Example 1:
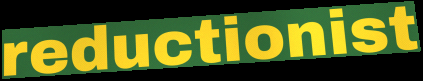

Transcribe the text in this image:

reductionist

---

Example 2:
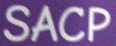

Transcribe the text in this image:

SACP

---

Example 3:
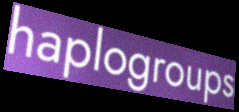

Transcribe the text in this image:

haplogroups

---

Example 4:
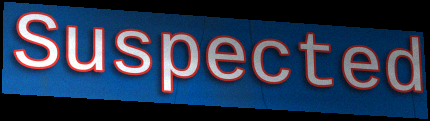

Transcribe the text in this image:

Suspected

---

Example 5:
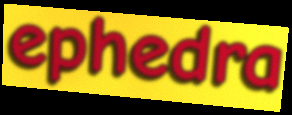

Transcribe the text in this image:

ephedra